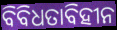
ବିବିଧତାବିହୀନ